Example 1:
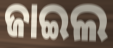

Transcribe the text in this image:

ଜାଇଲ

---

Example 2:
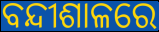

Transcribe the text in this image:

ବନ୍ଦୀଶାଳରେ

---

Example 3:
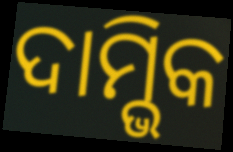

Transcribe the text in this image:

ଦାମ୍ଭିକ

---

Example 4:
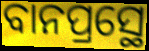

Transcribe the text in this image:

ବାନପ୍ରସ୍ଥେ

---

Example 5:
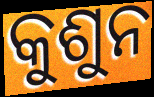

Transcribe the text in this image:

କୁଶୁନ